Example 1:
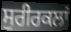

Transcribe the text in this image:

ਸੁਰੀਰਕਲਾਂ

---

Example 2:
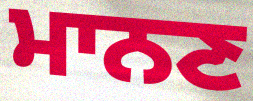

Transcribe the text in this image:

ਮਾਨਣ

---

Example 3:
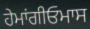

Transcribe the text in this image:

ਹੇਮਾਂਗੀਓਮਾਸ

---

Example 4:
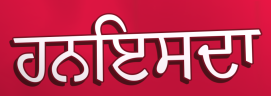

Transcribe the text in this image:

ਹਨਇਸਦਾ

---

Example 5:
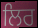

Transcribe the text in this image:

ਲਿਰ